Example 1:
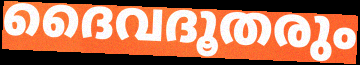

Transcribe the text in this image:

ദൈവദൂതരും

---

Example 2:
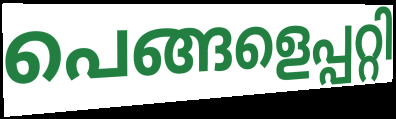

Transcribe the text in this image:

പെങ്ങളെപ്പറ്റി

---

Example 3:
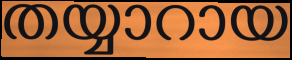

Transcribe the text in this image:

തയ്യാറായ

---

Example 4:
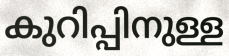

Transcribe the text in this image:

കുറിപ്പിനുള്ള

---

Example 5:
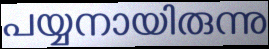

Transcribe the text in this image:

പയ്യനായിരുന്നു